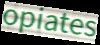
opiates